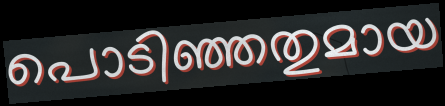
പൊടിഞ്ഞതുമായ